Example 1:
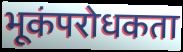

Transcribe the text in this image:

भूकंपरोधकता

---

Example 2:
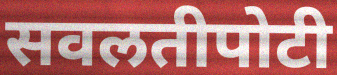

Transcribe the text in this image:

सवलतीपोटी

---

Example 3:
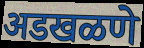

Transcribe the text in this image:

अडखळणे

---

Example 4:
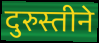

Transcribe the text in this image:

दुरुस्तीने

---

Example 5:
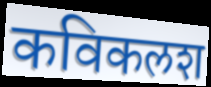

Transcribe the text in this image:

कविकलश